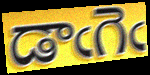
డాఁగెఁ